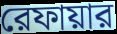
রেফায়ার